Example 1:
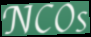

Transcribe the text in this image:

NCOs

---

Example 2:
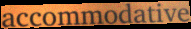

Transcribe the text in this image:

accommodative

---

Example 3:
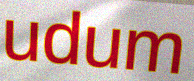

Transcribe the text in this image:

udum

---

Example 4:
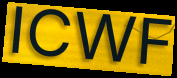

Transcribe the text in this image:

ICWF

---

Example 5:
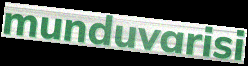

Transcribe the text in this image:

munduvarisi